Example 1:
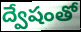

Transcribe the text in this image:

ద్వేషంతో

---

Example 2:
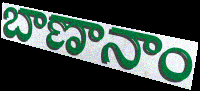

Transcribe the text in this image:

బాణానాం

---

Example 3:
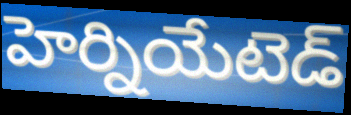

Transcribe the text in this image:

హెర్నియేటెడ్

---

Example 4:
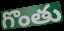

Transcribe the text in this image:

గొంతు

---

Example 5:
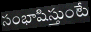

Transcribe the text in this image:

సంభాషిస్తుంటే